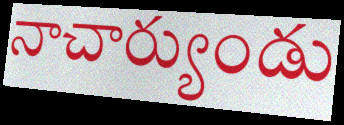
నాచార్యుండు